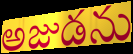
అజుడను